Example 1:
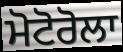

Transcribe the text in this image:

ਮੋਟੋਰੋਲਾ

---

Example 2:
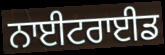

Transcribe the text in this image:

ਨਾਈਟਰਾਈਡ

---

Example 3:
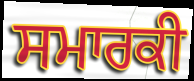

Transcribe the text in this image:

ਸਮਾਰਕੀ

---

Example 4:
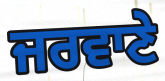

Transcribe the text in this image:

ਜਰਵਾਣੇ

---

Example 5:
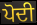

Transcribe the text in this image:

ਪੋਦੀ